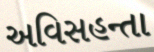
અવિસહન્તા